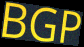
BGP